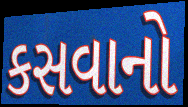
કસવાનો